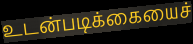
உடன்படிக்கையைச்